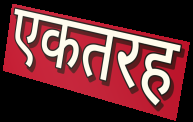
एकतरह